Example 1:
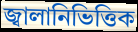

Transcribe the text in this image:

জ্বালানিভিত্তিক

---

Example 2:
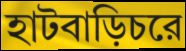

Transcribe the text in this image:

হাটবাড়িচরে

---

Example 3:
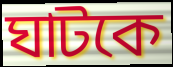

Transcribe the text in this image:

ঘাটকে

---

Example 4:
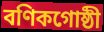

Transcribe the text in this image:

বণিকগোষ্ঠী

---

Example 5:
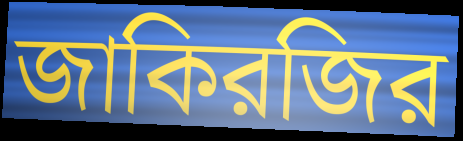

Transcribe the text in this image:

জাকিরজির